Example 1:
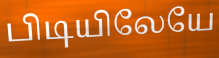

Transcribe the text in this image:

பிடியிலேயே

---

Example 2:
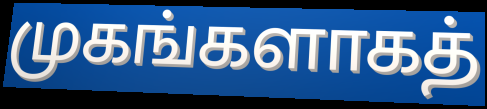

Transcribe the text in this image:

முகங்களாகத்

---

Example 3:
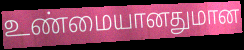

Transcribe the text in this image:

உண்மையானதுமான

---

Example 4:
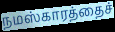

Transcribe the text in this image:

நமஸ்காரத்தைச்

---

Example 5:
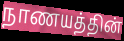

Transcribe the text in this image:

நாணயத்தின்